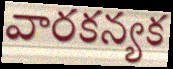
వారకన్యక